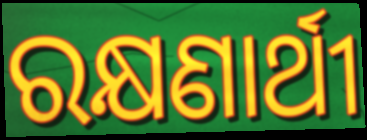
ରକ୍ଷଣାର୍ଥୀ